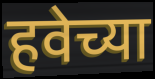
हवेच्या